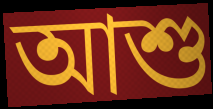
আশু